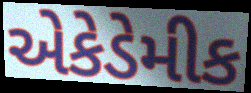
એકેડેમીક